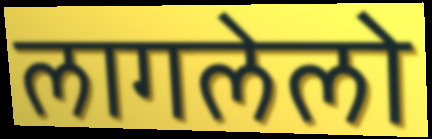
लागलेलो